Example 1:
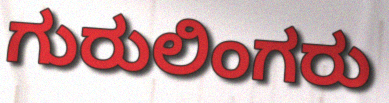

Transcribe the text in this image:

ಗುರುಲಿಂಗರು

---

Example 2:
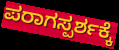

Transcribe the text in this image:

ಪರಾಗಸ್ಪರ್ಶಕ್ಕೆ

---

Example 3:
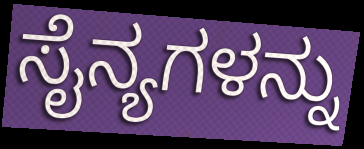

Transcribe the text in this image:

ಸೈನ್ಯಗಳನ್ನು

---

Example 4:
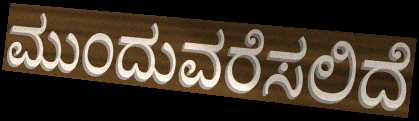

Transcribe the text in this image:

ಮುಂದುವರೆಸಲಿದೆ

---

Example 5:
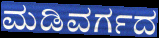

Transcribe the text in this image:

ಮಡಿವರ್ಗದ